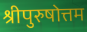
श्रीपुरुषोत्तम